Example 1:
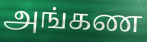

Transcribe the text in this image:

அங்கண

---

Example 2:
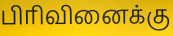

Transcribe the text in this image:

பிரிவினைக்கு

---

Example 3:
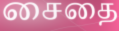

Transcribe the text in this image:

சைதை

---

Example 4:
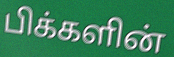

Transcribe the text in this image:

பிக்களின்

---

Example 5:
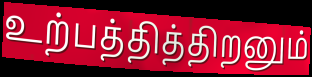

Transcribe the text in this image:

உற்பத்தித்திறனும்